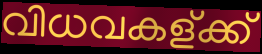
വിധവകള്ക്ക്